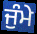
ਜੁੰਮੇ